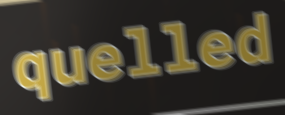
quelled